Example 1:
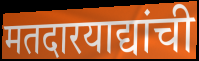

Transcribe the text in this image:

मतदारयाद्यांची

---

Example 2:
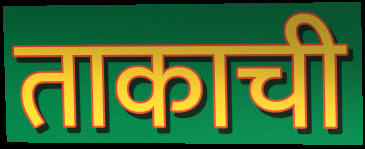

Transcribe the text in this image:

ताकाची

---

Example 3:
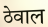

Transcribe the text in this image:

ठेवाल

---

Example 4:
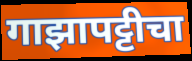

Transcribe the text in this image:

गाझापट्टीचा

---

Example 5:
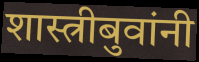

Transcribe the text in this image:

शास्त्रीबुवांनी